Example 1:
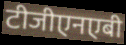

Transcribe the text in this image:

टीजीएनएबी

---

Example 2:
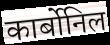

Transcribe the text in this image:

कार्बोनिल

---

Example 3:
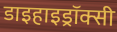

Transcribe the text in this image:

डाइहाइड्रॉक्सी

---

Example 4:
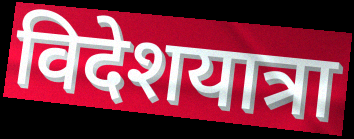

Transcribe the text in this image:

विदेशयात्रा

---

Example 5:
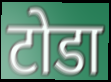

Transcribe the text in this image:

टोडा